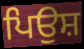
ਪਿਉਸ਼